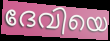
ദേവിയെ